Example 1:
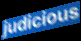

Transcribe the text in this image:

judicious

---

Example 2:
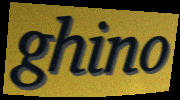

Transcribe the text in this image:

ghino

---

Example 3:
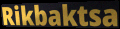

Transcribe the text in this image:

Rikbaktsa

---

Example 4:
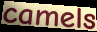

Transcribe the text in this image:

camels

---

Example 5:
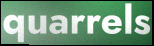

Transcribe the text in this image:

quarrels